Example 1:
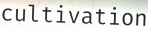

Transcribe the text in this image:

cultivation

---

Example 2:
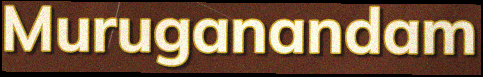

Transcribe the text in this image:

Muruganandam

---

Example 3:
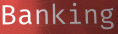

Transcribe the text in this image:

Banking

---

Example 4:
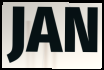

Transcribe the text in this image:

JAN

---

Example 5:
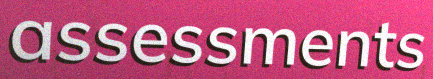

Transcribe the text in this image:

assessments